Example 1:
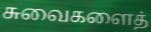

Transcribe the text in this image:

சுவைகளைத்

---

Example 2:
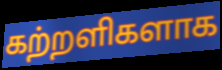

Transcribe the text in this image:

கற்றளிகளாக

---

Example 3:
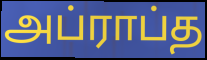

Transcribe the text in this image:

அப்ராப்த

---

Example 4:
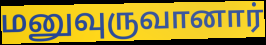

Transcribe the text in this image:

மனுவுருவானார்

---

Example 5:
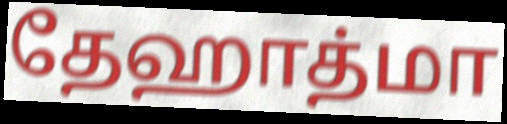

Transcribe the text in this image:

தேஹாத்மா